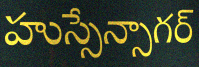
హుస్సేన్సాగర్